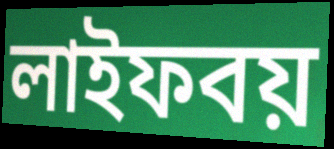
লাইফবয়